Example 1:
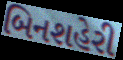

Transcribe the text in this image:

બિનશહેરી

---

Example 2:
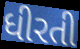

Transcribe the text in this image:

ધીરતી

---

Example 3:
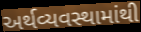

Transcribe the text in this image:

અર્થવ્યવસ્થામાંથી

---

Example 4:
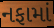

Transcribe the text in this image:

નફામાં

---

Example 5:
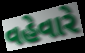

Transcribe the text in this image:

વહેવારે